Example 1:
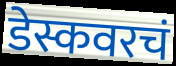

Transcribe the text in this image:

डेस्कवरचं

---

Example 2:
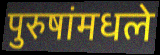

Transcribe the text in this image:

पुरुषांमधले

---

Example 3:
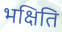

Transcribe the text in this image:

भक्षिति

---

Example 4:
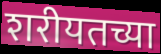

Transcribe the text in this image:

शरीयतच्या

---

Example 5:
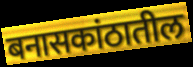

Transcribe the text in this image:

बनासकांठातील